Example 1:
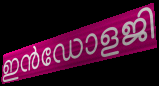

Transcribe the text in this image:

ഇൻഡോളജി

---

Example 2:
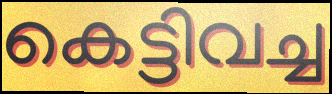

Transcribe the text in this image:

കെട്ടിവച്ച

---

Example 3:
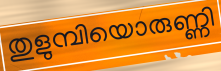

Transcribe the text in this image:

തുളുമ്പിയൊരുണ്ണി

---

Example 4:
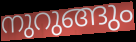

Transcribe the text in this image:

നുറുങ്ങും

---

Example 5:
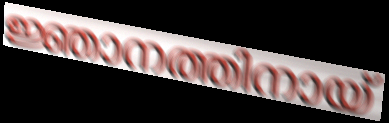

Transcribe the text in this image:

ജ്ഞാനത്തിനായ്